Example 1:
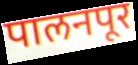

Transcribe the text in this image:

पालनपूर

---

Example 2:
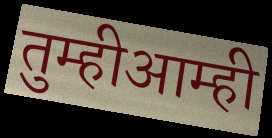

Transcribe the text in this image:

तुम्हीआम्ही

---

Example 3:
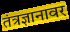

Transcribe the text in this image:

तंत्रज्ञानावर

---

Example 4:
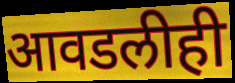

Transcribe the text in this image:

आवडलीही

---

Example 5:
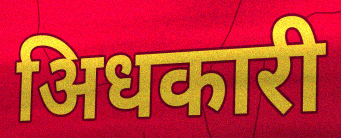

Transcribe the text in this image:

अिधकारी